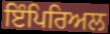
ਇੰਪਿਰਿਅਲ